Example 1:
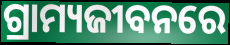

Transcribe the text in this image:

ଗ୍ରାମ୍ୟଜୀବନରେ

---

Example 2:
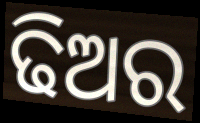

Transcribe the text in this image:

ଢିଅର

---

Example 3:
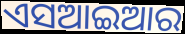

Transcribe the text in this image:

ଏସଆଇଆର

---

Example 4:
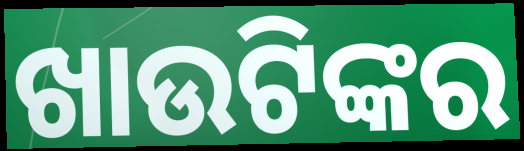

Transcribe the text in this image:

ଖାଉଟିଙ୍କର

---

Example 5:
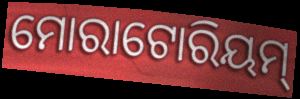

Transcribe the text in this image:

ମୋରାଟୋରିୟମ୍